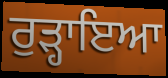
ਰੁੜ੍ਹਾਇਆ